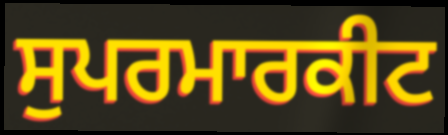
ਸੁਪਰਮਾਰਕੀਟ